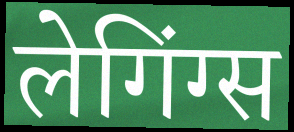
लेगिंग्स